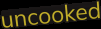
uncooked